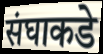
संघाकडे